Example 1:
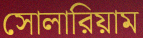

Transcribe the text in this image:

সোলারিয়াম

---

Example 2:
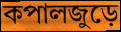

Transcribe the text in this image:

কপালজুড়ে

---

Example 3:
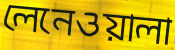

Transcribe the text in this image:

লেনেওয়ালা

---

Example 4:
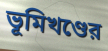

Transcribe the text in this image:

ভূমিখণ্ডের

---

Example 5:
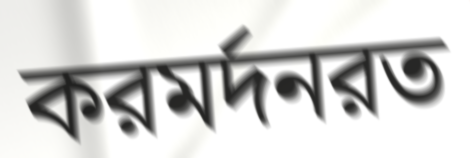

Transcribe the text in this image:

করমর্দনরত